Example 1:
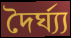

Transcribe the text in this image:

দৈৰ্ঘ্য্য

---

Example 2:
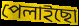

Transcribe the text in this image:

পেলাইছো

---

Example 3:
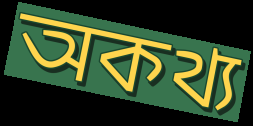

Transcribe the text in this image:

অকথ্য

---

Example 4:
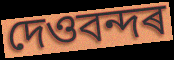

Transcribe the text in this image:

দেওবন্দৰ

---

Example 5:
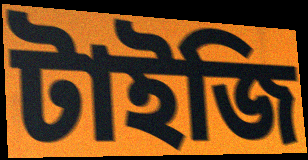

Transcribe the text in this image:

টাইজি